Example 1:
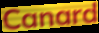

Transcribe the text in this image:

Canard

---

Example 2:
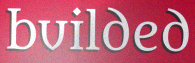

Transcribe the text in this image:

builded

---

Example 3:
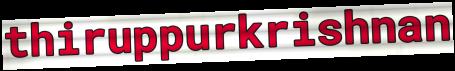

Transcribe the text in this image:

thiruppurkrishnan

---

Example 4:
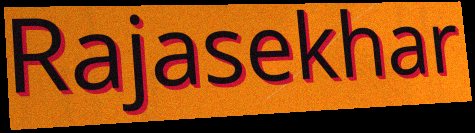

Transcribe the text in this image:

Rajasekhar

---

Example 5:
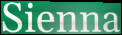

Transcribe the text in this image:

Sienna